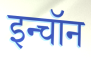
इन्चॉन